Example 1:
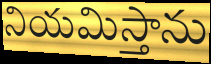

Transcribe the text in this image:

నియమిస్తాను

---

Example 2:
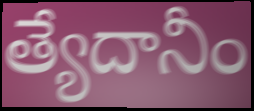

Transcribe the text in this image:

త్యేదానీం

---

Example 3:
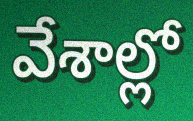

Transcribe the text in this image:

వేశాల్లో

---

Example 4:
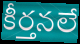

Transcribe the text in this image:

కీర్తనలే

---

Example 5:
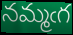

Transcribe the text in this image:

నమ్మఁగ